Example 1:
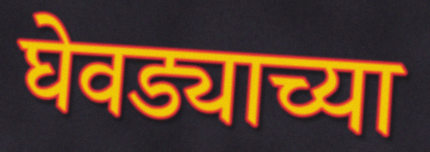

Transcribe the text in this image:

घेवड्याच्या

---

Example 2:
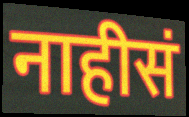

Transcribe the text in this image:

नाहीसं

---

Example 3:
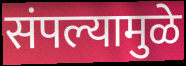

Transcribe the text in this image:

संपल्यामुळे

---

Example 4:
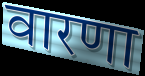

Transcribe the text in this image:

वारणा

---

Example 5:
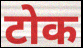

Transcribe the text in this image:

टोक